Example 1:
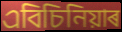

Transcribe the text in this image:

এবিচিনিয়াৰ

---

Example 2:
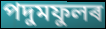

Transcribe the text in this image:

পদুমফুলৰ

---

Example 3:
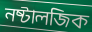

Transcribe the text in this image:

নষ্টালজিক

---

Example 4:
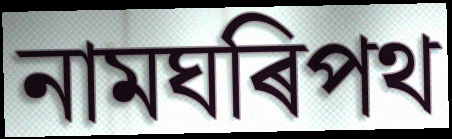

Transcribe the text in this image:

নামঘৰিপথ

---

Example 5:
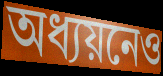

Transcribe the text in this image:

অধ্যয়নেও